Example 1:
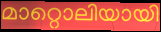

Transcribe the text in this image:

മാറ്റൊലിയായി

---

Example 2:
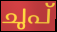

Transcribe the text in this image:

ചുപ്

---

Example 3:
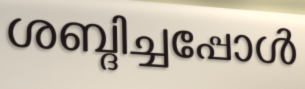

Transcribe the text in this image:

ശബ്ദിച്ചപ്പോൾ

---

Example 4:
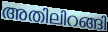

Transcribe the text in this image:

അതിലിറങ്ങി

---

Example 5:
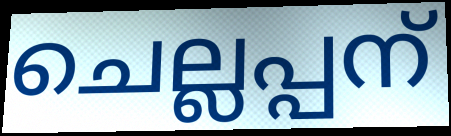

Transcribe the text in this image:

ചെല്ലപ്പന്